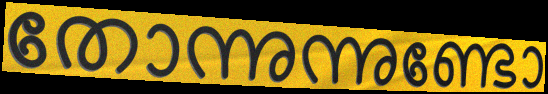
തോന്നുന്നുണ്ടോ